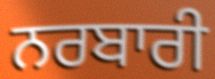
ਨਰਬਾਰੀ